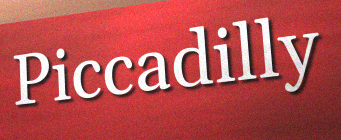
Piccadilly